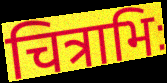
चित्राभिः